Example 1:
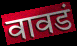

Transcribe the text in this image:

वावडं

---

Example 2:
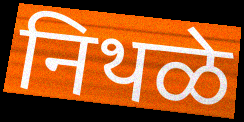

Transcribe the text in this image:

निथळे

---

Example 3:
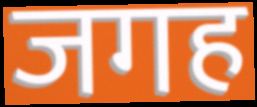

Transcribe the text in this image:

जगह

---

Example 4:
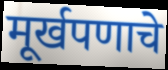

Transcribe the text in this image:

मूर्खपणाचे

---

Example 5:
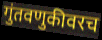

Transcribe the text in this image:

गुंतवणुकीवरच